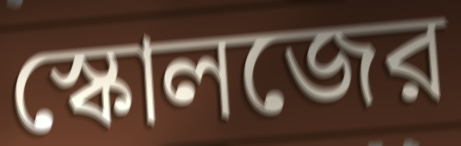
স্কোলজের